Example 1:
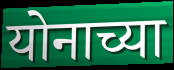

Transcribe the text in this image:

योनाच्या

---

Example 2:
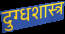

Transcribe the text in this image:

दुग्धशास्त्र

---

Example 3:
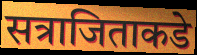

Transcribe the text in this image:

सत्राजिताकडे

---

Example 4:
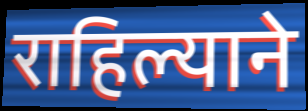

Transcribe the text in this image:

राहिल्याने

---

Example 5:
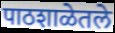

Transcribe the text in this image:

पाठशाळेतले